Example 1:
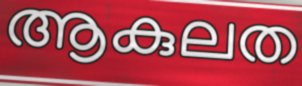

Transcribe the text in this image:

ആകുലത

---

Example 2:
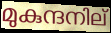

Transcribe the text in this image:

മുകുന്ദനില്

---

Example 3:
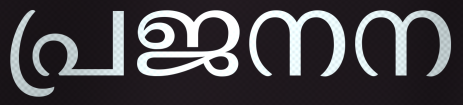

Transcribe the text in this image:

പ്രജനന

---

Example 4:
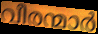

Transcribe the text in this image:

വീരന്മാർ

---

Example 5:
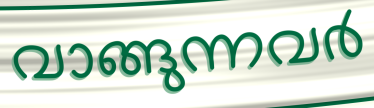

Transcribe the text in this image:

വാങ്ങുന്നവർ